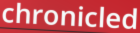
chronicled